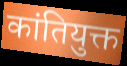
कांतियुक्त